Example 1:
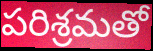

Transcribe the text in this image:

పరిశ్రమతో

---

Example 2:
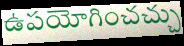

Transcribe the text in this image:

ఉపయోగించచ్చు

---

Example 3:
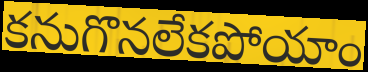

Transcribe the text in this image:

కనుగొనలేకపోయాం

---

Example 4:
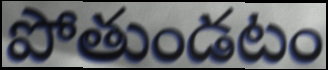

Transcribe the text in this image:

పోతుండటం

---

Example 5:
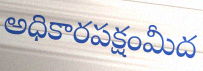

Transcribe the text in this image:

అధికారపక్షంమీద